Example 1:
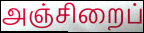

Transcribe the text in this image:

அஞ்சிறைப்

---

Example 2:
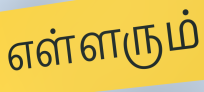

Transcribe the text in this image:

எள்ளரும்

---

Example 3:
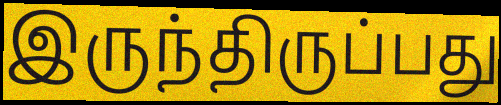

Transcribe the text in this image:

இருந்திருப்பது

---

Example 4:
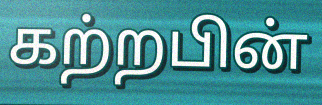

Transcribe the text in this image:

கற்றபின்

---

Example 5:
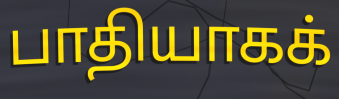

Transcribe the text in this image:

பாதியாகக்